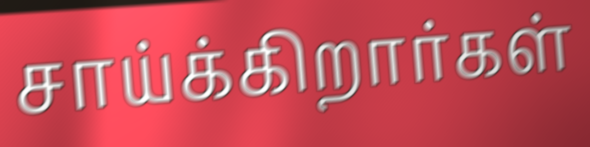
சாய்க்கிறார்கள்